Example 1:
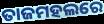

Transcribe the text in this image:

ତାଜମହଲରେ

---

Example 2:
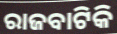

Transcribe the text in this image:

ରାଜବାଟିକି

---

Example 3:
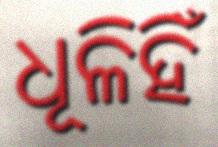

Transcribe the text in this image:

ଧୂଳିହିଁ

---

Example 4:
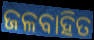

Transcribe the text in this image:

ଜଳବାହିତ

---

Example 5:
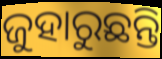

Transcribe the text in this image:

ଜୁହାରୁଛନ୍ତି